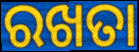
ରଖତା